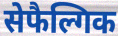
सेफैल्गिक